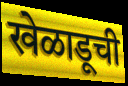
खेळाडूची